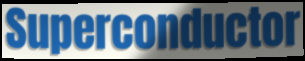
Superconductor